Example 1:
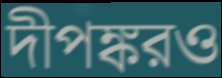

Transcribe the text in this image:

দীপঙ্করও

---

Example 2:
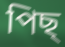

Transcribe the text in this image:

পিছ্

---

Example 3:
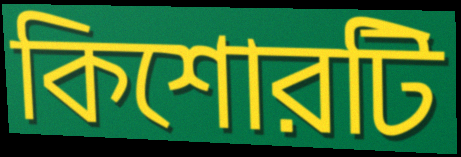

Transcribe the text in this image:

কিশোরটি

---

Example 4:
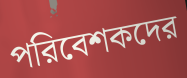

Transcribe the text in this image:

পরিবেশকদের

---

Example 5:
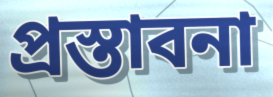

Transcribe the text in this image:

প্রস্তাবনা